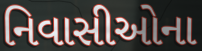
નિવાસીઓના